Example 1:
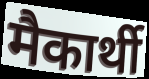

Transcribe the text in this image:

मैकार्थी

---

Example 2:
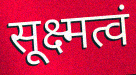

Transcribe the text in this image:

सूक्ष्मत्वं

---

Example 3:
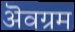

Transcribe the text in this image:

ऄवग्रम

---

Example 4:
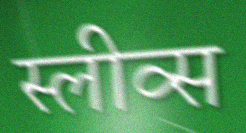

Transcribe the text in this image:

स्लीव्स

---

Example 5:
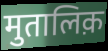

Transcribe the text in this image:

मुतालिक़